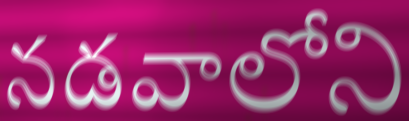
నడవాలోని